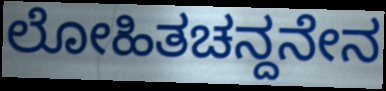
ಲೋಹಿತಚನ್ದನೇನ